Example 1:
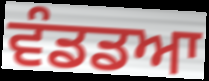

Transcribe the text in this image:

ਵੰਡਡਆ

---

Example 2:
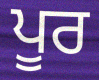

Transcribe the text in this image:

ਪੂਰ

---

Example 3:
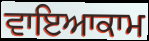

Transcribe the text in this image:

ਵਾਇਆਕਾਮ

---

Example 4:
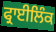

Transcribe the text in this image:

ਫ੍ਰਾਈਲਿੰਕ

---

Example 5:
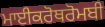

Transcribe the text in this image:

ਮਾਈਕਰੋਥਰੋਮਬੀ